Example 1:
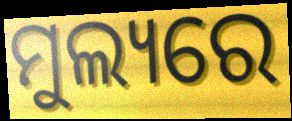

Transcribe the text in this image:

ମୁଲ୍ୟରେ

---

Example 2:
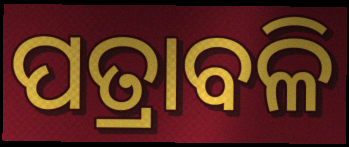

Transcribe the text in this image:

ପତ୍ରାବଳି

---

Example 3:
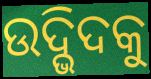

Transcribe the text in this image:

ଉଦ୍ଭିଦକୁ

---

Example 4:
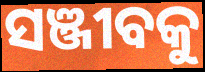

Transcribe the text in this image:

ସଞ୍ଜୀବକୁ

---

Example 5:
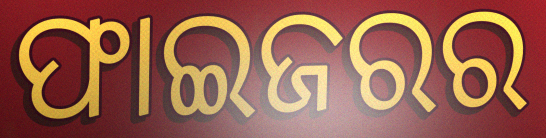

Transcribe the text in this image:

ଫାଇଜରର